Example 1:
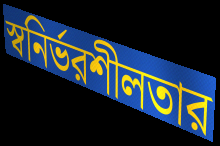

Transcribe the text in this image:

স্বনির্ভরশীলতার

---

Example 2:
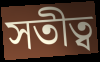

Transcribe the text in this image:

সতীত্ব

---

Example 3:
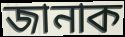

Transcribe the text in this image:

জানাক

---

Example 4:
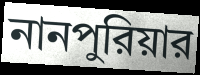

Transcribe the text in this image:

নানপুরিয়ার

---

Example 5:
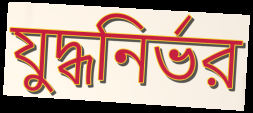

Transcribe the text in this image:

যুদ্ধনির্ভর